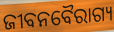
ଜୀବନବୈରାଗ୍ୟ